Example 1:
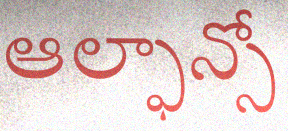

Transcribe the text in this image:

ఆల్ఫాన్సో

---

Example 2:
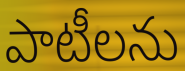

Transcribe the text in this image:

పాటీలను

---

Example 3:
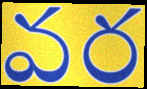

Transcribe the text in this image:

వర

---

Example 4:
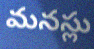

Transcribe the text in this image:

మనస్లు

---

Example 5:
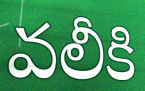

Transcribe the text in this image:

వలీకి